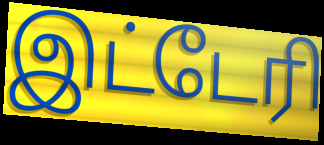
இட்டேரி